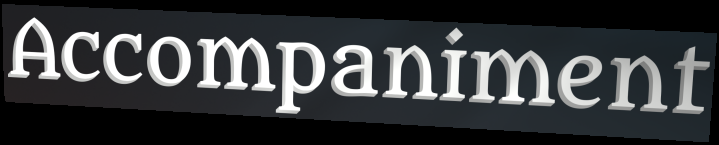
Accompaniment